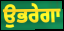
ਉਭਰੇਗਾ